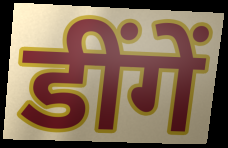
डींगें